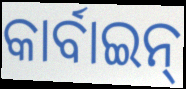
କାର୍ବାଇନ୍